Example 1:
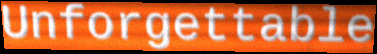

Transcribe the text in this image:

Unforgettable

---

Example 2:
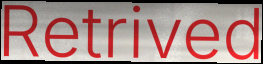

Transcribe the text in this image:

Retrived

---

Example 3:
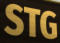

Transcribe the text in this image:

STG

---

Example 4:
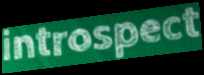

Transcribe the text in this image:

introspect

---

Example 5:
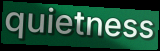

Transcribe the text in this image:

quietness